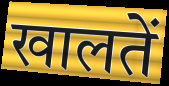
खालतें